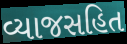
વ્યાજસહિત